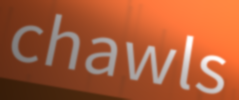
chawls